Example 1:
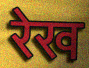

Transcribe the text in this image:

रेख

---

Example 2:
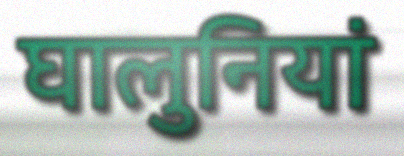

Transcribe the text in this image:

घालुनियां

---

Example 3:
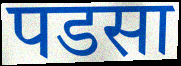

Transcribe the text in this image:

पडसा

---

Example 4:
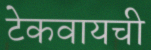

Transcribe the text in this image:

टेकवायची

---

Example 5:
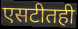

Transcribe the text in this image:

एसटीतही